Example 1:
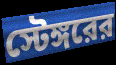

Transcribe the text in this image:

স্টেঙ্গরের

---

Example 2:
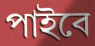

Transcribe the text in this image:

পাইবে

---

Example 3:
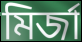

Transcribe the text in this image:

মির্জা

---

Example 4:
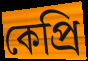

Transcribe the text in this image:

কেপ্রি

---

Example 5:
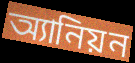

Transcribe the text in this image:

অ্যানিয়ন